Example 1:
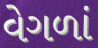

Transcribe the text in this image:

વેગળાં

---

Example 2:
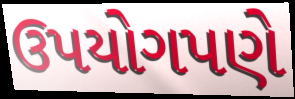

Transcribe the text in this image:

ઉપયોગપણે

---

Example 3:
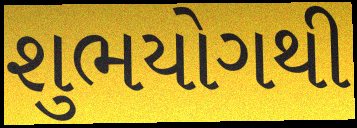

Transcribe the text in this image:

શુભયોગથી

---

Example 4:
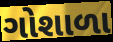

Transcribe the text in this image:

ગોશાળા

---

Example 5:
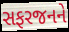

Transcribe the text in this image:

સફરજનને